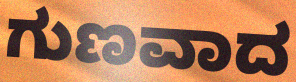
ಗುಣವಾದ